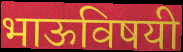
भाऊविषयी